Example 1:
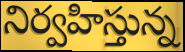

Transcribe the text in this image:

నిర్వహిస్తున్న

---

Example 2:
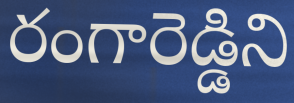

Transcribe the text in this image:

రంగారెడ్డిని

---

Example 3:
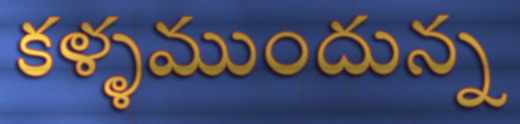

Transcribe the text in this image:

కళ్ళముందున్న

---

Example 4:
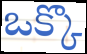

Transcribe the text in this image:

ఒక్కొ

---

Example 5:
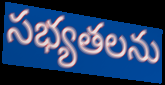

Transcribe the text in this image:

సభ్యతలను